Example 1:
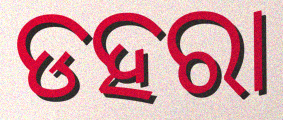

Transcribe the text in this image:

ଡହରା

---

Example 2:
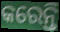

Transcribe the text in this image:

କରେନ୍ତି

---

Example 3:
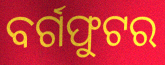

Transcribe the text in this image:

ବର୍ଗଫୁଟର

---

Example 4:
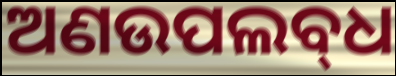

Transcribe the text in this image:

ଅଣଉପଲବ୍‌ଧ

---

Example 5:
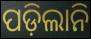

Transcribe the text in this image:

ପଡ଼ିଲାନି